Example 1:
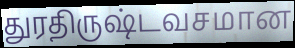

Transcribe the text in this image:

துரதிருஷ்டவசமான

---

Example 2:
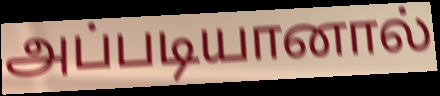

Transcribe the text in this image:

அப்படியானால்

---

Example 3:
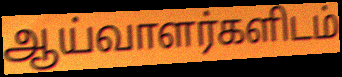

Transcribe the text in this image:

ஆய்வாளர்களிடம்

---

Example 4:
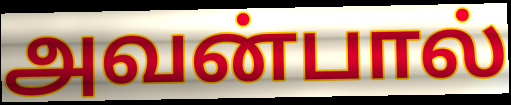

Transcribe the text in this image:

அவன்பால்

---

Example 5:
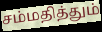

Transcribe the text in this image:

சம்மதித்தும்